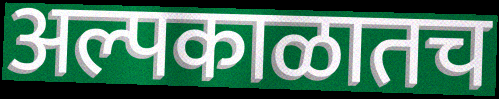
अल्पकाळातच